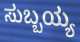
ಸುಬ್ಬಯ್ಯ